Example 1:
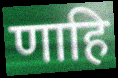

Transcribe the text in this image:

णाहि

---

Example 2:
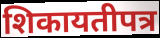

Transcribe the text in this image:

शिकायतीपत्र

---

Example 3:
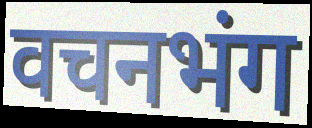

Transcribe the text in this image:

वचनभंग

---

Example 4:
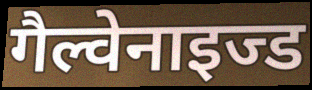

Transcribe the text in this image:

गैल्वेनाइज्ड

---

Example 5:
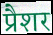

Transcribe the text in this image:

प्रैशर